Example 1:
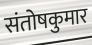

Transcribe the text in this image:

संतोषकुमार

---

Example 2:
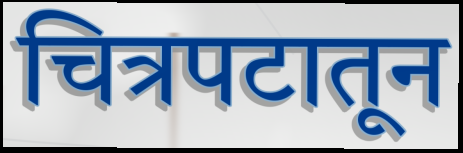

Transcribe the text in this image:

चित्रपटातून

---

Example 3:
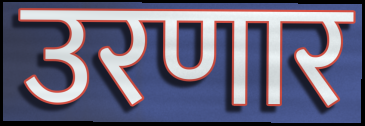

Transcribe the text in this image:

उरणार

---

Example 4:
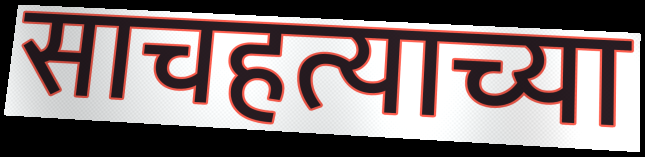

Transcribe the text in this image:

साचहत्याच्या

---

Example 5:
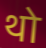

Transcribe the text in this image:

थो